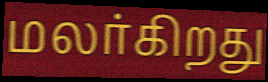
மலர்கிறது